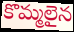
కొమ్మలైన